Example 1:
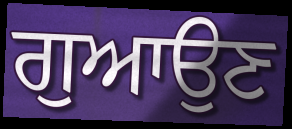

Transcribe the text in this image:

ਗੁਆਉਣ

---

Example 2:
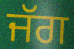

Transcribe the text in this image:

ਜੱਗ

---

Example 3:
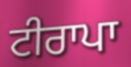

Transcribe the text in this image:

ਟੀਰਾਪਾ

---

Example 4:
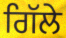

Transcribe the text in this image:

ਗਿੱਲੇ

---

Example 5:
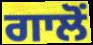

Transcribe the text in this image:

ਗਾਲੋਂ